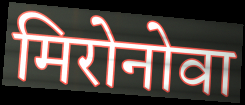
मिरोनोवा